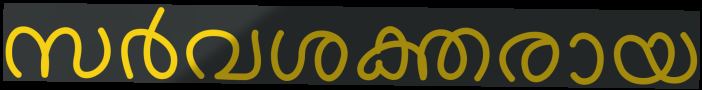
സർവശക്തരായ